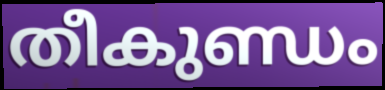
തീകുണ്ഡം